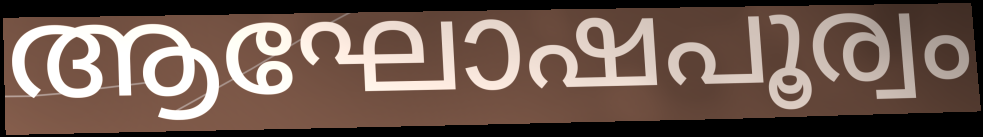
ആഘോഷപൂര്വം